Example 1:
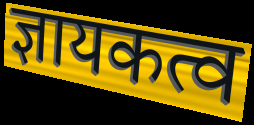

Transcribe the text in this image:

ज्ञायकत्व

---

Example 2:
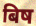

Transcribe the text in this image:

बिष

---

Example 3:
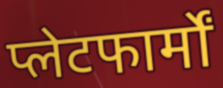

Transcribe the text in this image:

प्लेटफार्मों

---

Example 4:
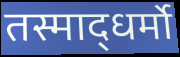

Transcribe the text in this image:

तस्माद्धर्मो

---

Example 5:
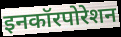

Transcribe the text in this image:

इनकॉरपोरेशन